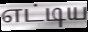
எட்டிய